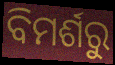
ବିମର୍ଶରୁ